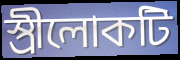
স্ত্রীলোকটি